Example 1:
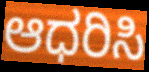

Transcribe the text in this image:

ಆಧರಿಸಿ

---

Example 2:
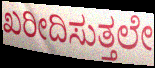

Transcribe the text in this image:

ಖರೀದಿಸುತ್ತಲೇ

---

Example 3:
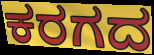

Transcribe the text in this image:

ಕರಗದ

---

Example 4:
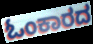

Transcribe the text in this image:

ಓಂಕಾರದ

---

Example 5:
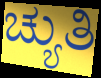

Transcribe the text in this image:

ಚ್ಯುತಿ